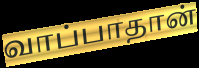
வாப்பாதான்